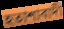
হতাশাবাদী